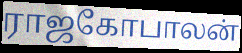
ராஜகோபாலன்